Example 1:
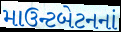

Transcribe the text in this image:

માઉન્ટબેટનનાં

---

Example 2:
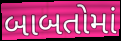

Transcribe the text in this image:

બાબતોમાં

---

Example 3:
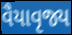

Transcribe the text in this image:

વૈયાવૃજ્ય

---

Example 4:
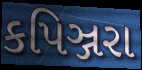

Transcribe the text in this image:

કપિઞ્જરા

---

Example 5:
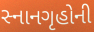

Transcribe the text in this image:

સ્નાનગૃહોની